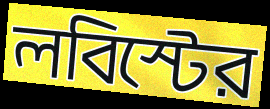
লবিস্টের